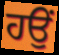
ਹਉਂ